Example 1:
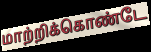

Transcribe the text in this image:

மாற்றிக்கொண்டே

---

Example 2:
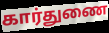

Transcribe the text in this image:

கார்துணை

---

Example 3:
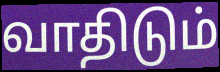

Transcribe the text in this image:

வாதிடும்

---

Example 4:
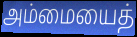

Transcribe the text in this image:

அம்மையைத்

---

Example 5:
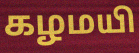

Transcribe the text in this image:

கழமயி